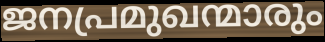
ജനപ്രമുഖന്മാരും